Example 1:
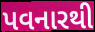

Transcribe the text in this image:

પવનારથી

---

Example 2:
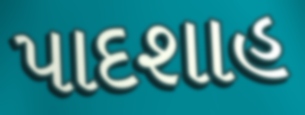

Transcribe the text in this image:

પાદશાહ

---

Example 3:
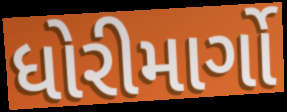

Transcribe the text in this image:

ધોરીમાર્ગો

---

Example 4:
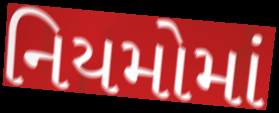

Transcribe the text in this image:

નિયમોમાં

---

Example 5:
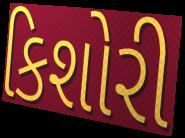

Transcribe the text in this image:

કિશોરી